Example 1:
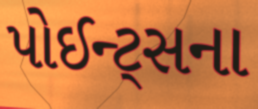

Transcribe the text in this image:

પોઈન્ટ્સના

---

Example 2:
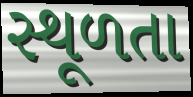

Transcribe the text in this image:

સ્થૂળતા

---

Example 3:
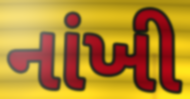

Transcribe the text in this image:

નાંખી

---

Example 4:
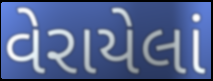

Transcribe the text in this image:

વેરાયેલાં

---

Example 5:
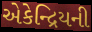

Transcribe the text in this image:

એકેન્દ્રિયની